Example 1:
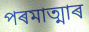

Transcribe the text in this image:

পৰমাত্মাৰ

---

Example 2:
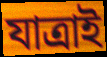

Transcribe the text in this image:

যাত্ৰাই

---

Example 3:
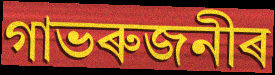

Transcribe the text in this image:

গাভৰুজনীৰ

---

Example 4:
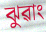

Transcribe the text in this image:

ঝুৱাং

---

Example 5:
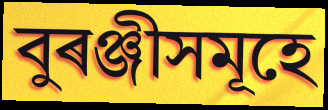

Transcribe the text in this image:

বুৰঞ্জীসমূহে